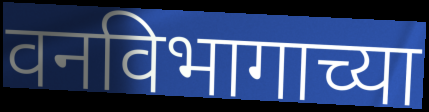
वनविभागाच्या